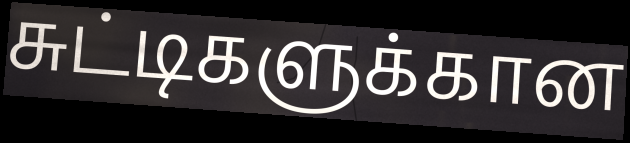
சுட்டிகளுக்கான